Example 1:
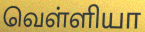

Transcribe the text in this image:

வெள்ளியா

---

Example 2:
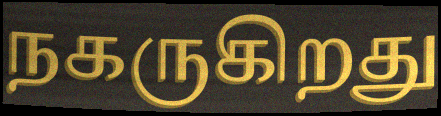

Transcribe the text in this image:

நகருகிறது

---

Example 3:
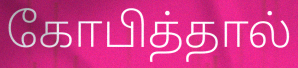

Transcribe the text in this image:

கோபித்தால்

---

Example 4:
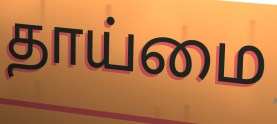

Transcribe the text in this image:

தாய்மை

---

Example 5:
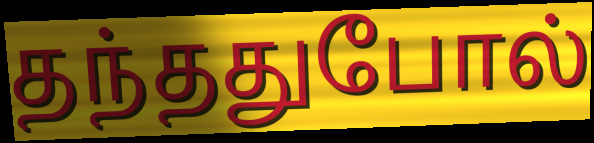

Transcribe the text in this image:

தந்ததுபோல்